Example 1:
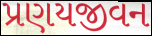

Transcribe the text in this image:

પ્રણયજીવન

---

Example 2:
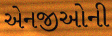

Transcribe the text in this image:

એનજીઓની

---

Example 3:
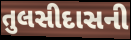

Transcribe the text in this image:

તુલસીદાસની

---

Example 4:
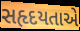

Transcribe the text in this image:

સહૃદયતાએ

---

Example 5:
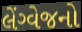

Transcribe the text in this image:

લેંગ્વેજનો